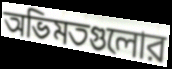
অভিমতগুলোর